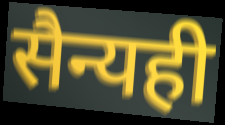
सैन्यही